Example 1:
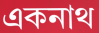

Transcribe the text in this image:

একনাথ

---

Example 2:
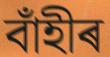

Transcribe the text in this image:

বাঁহীৰ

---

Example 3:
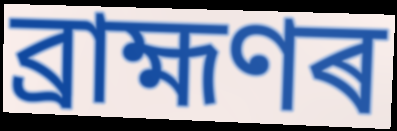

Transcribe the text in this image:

ব্ৰাহ্মণৰ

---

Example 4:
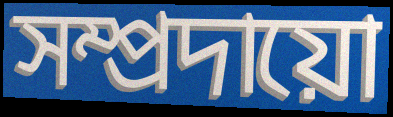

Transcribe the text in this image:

সম্প্ৰদায়ো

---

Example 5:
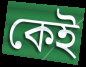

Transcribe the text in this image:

কেই